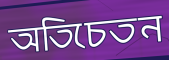
অতিচেতন